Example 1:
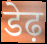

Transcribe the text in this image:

डेढ़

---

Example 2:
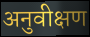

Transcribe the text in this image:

अनुवीक्षण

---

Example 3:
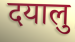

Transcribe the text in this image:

दयालु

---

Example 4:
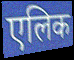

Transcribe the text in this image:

एलिक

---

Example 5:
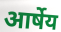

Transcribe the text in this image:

आर्षेय